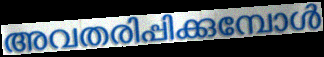
അവതരിപ്പിക്കുമ്പോൾ